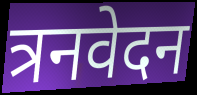
त्रनवेदन